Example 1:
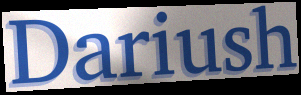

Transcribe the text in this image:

Dariush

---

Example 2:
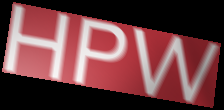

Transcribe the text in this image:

HPW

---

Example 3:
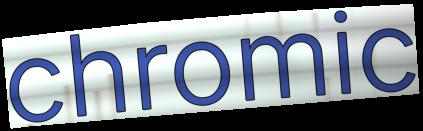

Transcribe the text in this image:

chromic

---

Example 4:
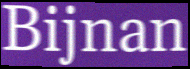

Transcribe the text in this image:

Bijnan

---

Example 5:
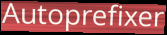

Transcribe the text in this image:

Autoprefixer